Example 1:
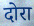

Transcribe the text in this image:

दोरा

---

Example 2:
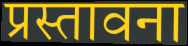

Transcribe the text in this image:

प्रस्तावना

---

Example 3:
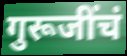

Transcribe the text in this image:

गुरूजींचं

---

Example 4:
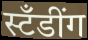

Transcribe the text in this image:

स्टँडींग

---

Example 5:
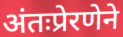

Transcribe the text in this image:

अंतःप्रेरणेने